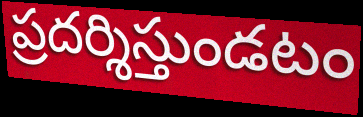
ప్రదర్శిస్తుండటం